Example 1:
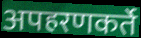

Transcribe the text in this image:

अपहरणकर्ते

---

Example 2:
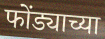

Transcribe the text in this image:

फोंड्याच्या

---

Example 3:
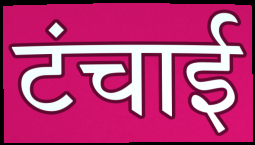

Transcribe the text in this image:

टंचाई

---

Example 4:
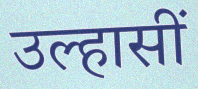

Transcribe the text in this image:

उल्हासीं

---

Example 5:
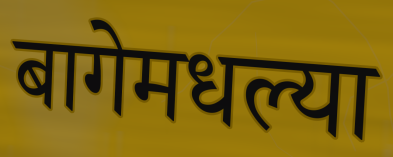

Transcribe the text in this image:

बागेमधल्या